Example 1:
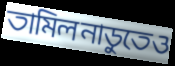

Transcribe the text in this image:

তামিলনাডুতেও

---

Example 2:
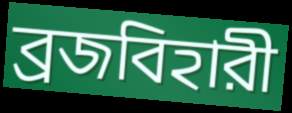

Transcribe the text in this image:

ব্রজবিহারী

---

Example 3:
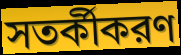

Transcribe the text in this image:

সতর্কীকরণ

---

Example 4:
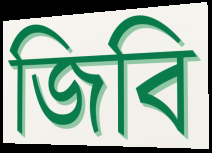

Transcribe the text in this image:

জিবি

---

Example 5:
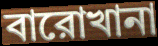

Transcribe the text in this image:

বারোখানা